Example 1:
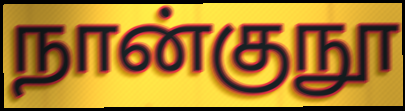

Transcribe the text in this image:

நான்குநூ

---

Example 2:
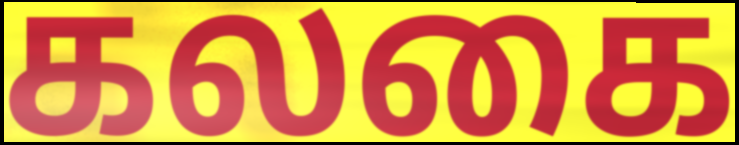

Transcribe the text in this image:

கலகை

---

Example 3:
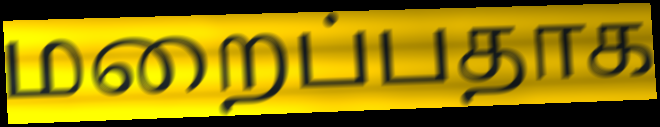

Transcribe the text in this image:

மறைப்பதாக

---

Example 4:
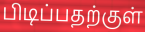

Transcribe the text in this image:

பிடிப்பதற்குள்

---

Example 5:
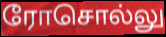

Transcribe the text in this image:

ரோசொல்லு